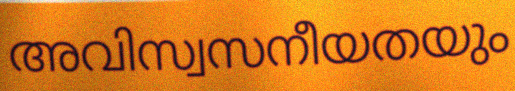
അവിസ്വസനീയതയും